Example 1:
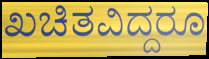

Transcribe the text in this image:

ಖಚಿತವಿದ್ದರೂ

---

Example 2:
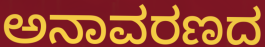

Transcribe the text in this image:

ಅನಾವರಣದ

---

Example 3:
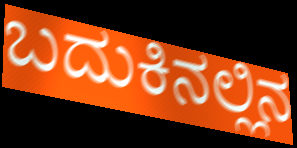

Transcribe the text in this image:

ಬದುಕಿನಲ್ಲಿನ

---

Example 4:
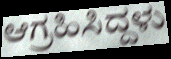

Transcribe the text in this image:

ಆಗ್ರಹಿಸಿದ್ದಳು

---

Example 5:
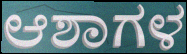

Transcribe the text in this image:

ಆಶಾಗಳ